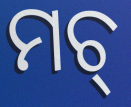
ମଚ୍